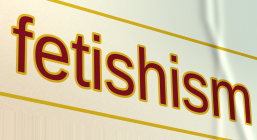
fetishism